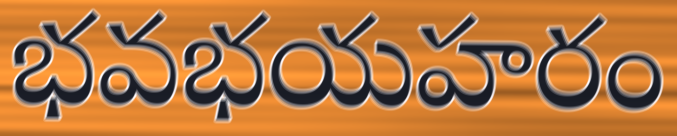
భవభయహరం